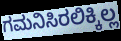
ಗಮನಿಸಿರಲಿಕ್ಕಿಲ್ಲ